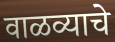
वाळव्याचे